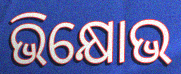
ଭିକ୍ଷୋଭ